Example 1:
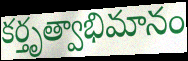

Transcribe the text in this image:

కర్తృత్వాభిమానం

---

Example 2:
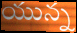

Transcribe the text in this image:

యున్న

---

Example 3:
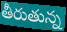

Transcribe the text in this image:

తీరుతున్న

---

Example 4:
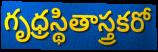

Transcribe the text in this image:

గృధ్రస్థితాస్త్రకరో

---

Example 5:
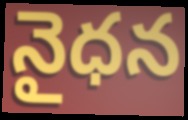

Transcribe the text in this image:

నైధన